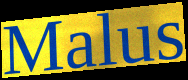
Malus